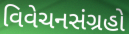
વિવેચનસંગ્રહો